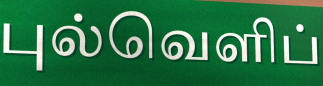
புல்வெளிப்